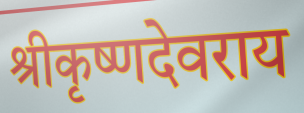
श्रीकृष्णदेवराय